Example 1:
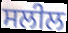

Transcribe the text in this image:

ਸਲੀਲ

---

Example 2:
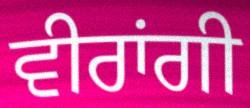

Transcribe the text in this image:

ਵੀਰਾਂਗੀ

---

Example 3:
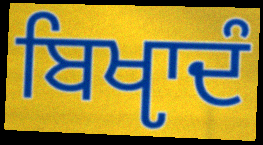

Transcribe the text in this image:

ਬਿਖੵਾਦੰ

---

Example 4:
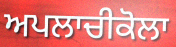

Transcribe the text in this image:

ਅਪਲਾਚੀਕੋਲਾ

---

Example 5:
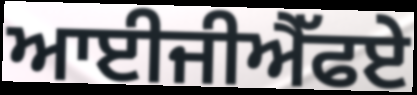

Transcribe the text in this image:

ਆਈਜੀਐੱਫਏ